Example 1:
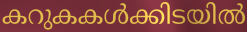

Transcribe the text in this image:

കറുകകൾക്കിടയിൽ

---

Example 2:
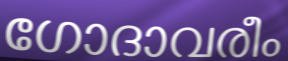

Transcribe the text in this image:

ഗോദാവരീം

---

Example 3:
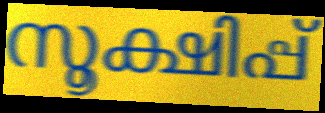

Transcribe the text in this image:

സൂക്ഷിപ്പ്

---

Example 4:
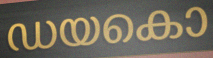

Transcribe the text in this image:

ഡയകൊ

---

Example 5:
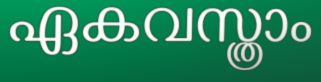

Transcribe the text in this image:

ഏകവസ്ത്രാം